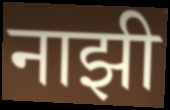
नाझी